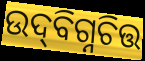
ଉଦ୍‌ବିଗ୍ନଚିତ୍ତ